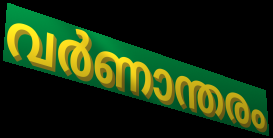
വർണാന്തരം